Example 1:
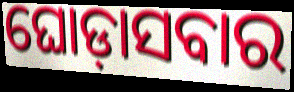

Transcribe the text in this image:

ଘୋଡ଼ାସବାର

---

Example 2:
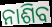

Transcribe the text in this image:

ନାଶିବ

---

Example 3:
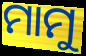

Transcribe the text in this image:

ମାମୁ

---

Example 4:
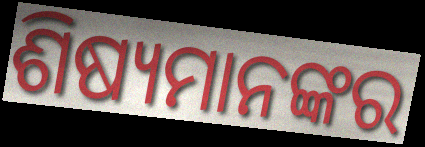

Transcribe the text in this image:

ଶିଷ୍ୟମାନଙ୍କର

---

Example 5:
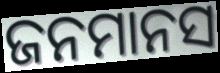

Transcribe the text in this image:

ଜନମାନସ